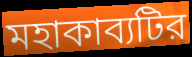
মহাকাব্যটির